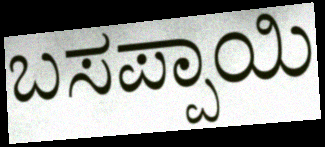
ಬಸಪ್ಪಾಯಿ